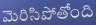
మెరిసిపోతోంది